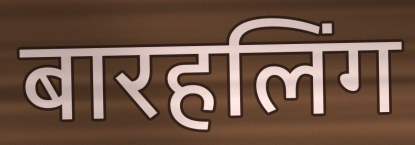
बारहलिंग